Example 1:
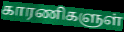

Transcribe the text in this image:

காரணிகளுள்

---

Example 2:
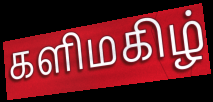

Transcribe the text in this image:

களிமகிழ்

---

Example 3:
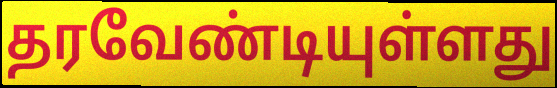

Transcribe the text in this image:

தரவேண்டியுள்ளது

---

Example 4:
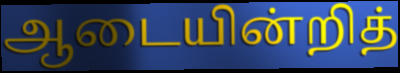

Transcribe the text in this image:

ஆடையின்றித்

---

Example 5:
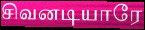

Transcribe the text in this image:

சிவனடியாரே